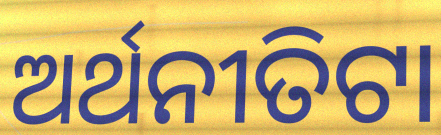
ଅର୍ଥନୀତିଟା